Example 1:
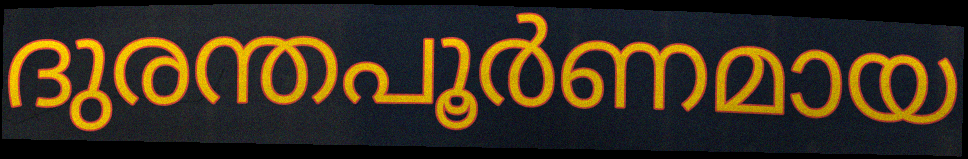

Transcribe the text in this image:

ദുരന്തപൂർണമായ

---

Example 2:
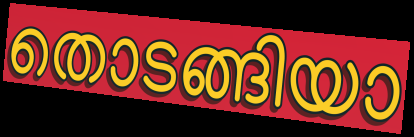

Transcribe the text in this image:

തൊടങ്ങിയാ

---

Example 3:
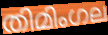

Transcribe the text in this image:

തിമിംഗല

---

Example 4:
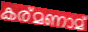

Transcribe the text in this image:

കര്മണാമ്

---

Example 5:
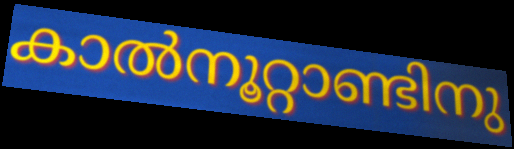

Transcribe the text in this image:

കാൽനൂറ്റാണ്ടിനു